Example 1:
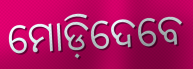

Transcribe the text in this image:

ମୋଡ଼ିଦେବେ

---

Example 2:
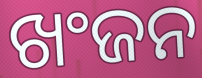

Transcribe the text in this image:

ଖଂଜନ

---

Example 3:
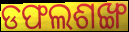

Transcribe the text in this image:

ଡଫଲଶଙ୍ଖ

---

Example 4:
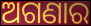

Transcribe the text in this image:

ଅଗଣାର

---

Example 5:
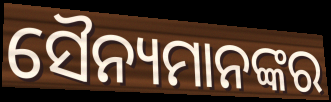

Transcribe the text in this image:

ସୈନ୍ୟମାନଙ୍କର